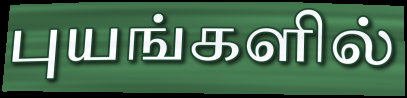
புயங்களில்